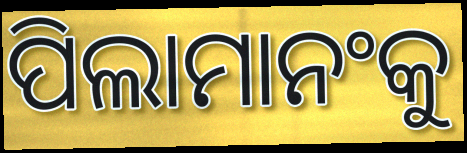
ପିଲାମାନଂକୁ